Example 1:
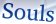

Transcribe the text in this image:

Souls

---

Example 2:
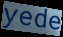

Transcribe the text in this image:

yede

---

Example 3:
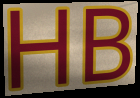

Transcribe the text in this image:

HB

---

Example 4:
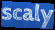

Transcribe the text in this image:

scaly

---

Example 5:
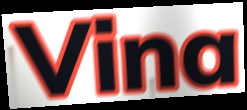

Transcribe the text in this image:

Vina